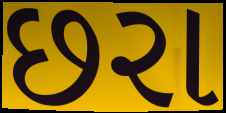
છરા